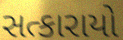
સત્કારાયો